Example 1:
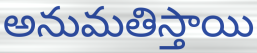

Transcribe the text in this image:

అనుమతిస్తాయి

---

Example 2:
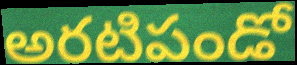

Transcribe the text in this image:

అరటిపండో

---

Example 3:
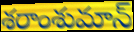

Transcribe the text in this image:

శరాంశుమాన్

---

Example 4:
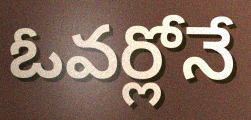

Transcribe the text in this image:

ఓవర్లోనే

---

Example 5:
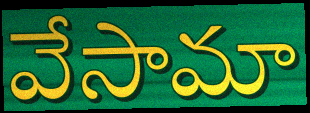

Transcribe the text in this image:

వేసామా